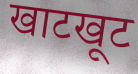
खाटखूट